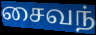
சைவந்